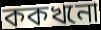
ককখনো